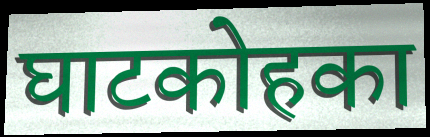
घाटकोहका